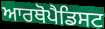
ਆਰਥੋਪੈਡਿਸਟ